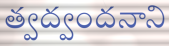
త్వద్వందనాని